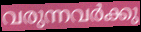
വരുന്നവർക്കു